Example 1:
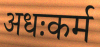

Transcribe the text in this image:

अधःकर्म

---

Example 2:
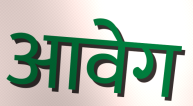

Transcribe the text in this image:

आवेग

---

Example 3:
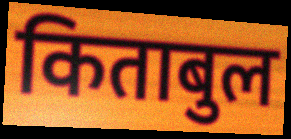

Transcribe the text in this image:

किताबुल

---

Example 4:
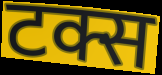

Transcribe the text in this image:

टक्स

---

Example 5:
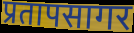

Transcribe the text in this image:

प्रतापसागर